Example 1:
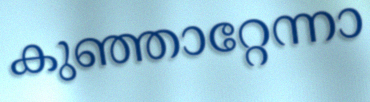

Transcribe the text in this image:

കുഞ്ഞാറ്റേന്നാ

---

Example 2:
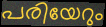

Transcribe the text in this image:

പരിയേറും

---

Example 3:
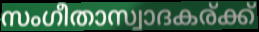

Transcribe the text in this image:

സംഗീതാസ്വാദകര്ക്ക്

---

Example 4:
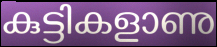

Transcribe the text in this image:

കുട്ടികളാണു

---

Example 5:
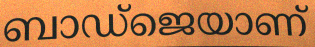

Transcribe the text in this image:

ബാഡ്ജെയാണ്